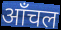
ऑंचल